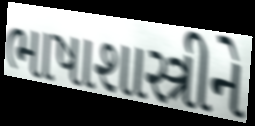
ભાષાશાસ્ત્રીને